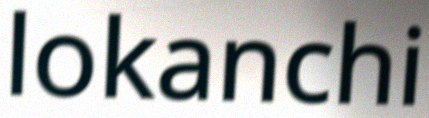
lokanchi